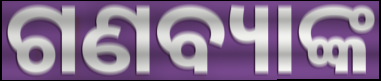
ଗଣବ୍ୟାଙ୍କ